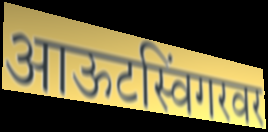
आऊटस्विंगरवर